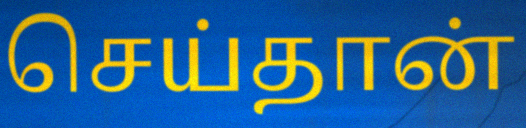
செய்தான்